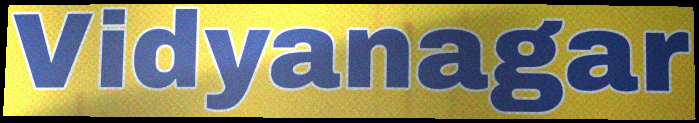
Vidyanagar